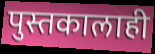
पुस्तकालाही